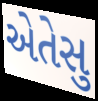
એતેસુ